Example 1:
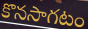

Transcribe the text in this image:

కొనసాగటం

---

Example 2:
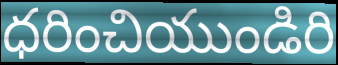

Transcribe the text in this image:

ధరించియుండిరి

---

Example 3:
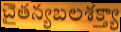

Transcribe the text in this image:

చైతన్యబలశక్త్యా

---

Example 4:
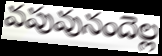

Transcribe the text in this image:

వపువునందెల్ల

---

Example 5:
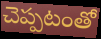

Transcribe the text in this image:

చెప్పటంతో